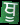
ਥੂ